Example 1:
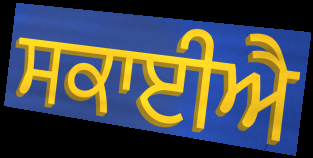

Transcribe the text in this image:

ਸਕਾਈਐ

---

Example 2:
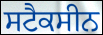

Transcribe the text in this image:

ਸਟੈਕਸੀਨ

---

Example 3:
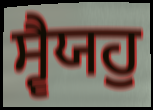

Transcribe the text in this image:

ਸ੍ਵੈਯਹੁ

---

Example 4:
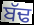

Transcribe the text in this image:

ਬੱਢ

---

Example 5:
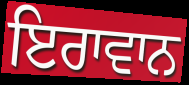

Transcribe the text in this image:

ਇਰਾਵਾਨ